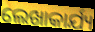
ଲେଖାକାର୍ଯ୍ୟ